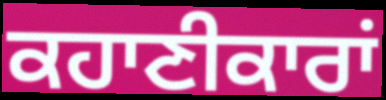
ਕਹਾਣੀਕਾਰਾਂ